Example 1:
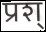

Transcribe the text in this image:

प्रश्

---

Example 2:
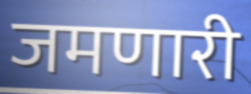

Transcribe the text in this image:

जमणारी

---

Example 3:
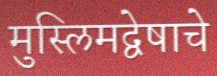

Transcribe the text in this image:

मुस्लिमद्वेषाचे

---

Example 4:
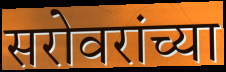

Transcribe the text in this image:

सरोवरांच्या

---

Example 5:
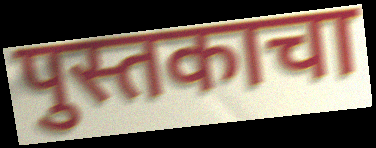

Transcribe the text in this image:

पुस्तकाचा